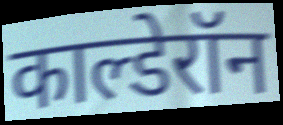
काल्डेरॉन